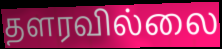
தளரவில்லை